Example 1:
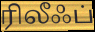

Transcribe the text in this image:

ரிலீஃப்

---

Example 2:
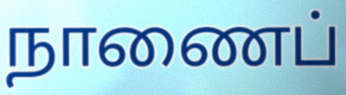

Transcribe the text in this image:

நாணைப்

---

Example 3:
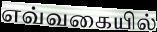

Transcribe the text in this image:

எவ்வகையில்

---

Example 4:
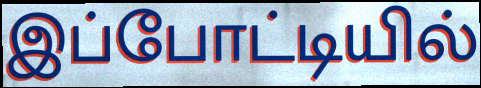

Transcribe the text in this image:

இப்போட்டியில்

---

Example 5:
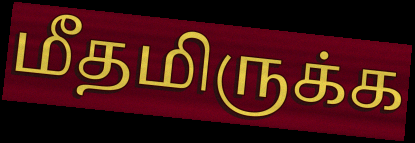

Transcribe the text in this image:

மீதமிருக்க